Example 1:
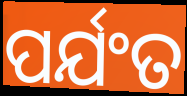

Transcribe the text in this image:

ପର୍ଯଂତ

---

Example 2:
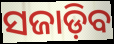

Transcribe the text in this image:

ସଜାଡ଼ିବ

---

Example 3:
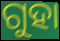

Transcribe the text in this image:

ଗୁହା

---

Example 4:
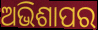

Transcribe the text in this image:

ଅଭିଶାପର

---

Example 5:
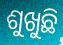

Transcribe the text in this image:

ଶୁଖୁଛି